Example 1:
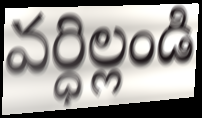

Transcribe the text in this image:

వర్ధిల్లండి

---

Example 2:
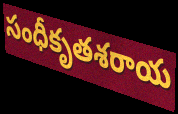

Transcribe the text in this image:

సంధీకృతశరాయ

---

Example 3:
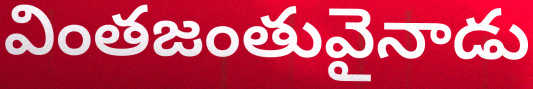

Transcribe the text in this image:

వింతజంతువైనాడు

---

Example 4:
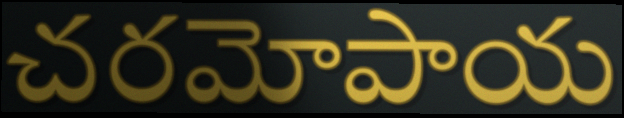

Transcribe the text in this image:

చరమోపాయ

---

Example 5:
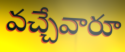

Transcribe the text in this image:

వచ్చేవారూ